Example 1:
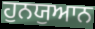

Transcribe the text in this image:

ਹੁਨਯੁਆਨ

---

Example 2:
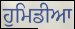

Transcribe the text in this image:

ਹੁਮਿਡੀਆ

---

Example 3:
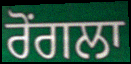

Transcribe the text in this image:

ਰੋਂਗਲਾ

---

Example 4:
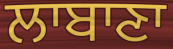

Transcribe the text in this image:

ਲਾਬਾਣਾ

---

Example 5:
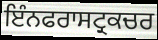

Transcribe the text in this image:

ਇੰਨਫਰਾਸਟ੍ਰਕਚਰ